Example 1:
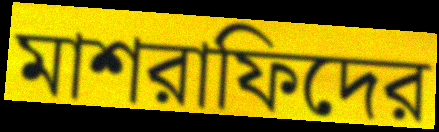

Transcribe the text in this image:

মাশরাফিদের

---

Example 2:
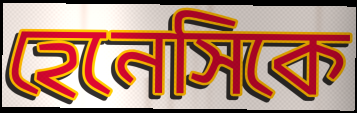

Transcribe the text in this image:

হেনেসিকে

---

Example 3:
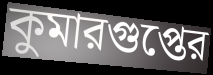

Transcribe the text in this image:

কুমারগুপ্তের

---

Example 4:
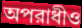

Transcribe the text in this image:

অপরাধীও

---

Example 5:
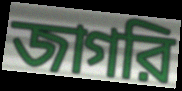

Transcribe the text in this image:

জাগরি